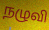
நழுவி